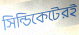
সিন্ডিকেটেরই